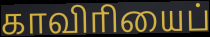
காவிரியைப்